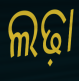
ଲଢ଼ା